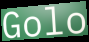
Golo